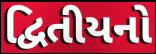
દ્વિતીયનો